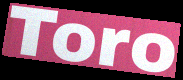
Toro